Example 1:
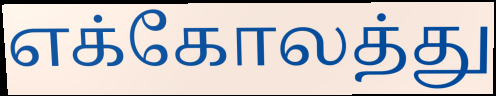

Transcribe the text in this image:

எக்கோலத்து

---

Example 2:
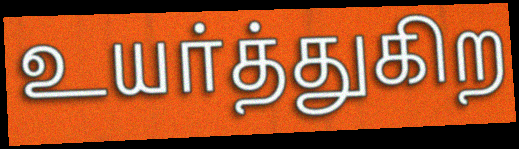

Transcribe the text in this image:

உயர்த்துகிற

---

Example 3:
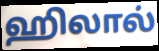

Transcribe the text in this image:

ஹிலால்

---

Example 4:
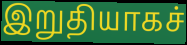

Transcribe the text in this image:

இறுதியாகச்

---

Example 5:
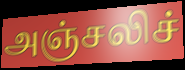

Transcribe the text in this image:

அஞ்சலிச்